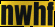
nwhf